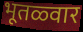
भूतळ्वार